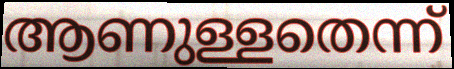
ആണുള്ളതെന്ന്